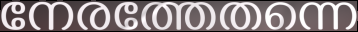
നേരത്തേതന്നെ